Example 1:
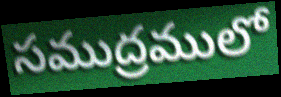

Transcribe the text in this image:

సముద్రములో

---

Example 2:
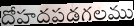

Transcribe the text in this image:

దోహదపడగలము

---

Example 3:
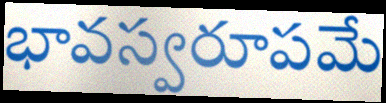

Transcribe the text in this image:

భావస్వరూపమే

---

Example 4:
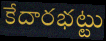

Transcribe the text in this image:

కేదారభట్టు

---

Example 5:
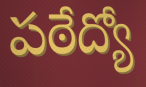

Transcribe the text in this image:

పఠేద్యో